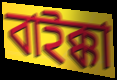
বাইক্কা